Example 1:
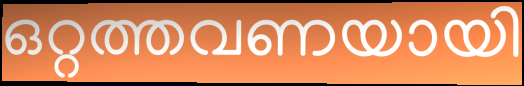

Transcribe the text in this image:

ഒറ്റത്തവണയായി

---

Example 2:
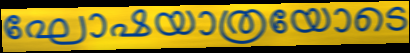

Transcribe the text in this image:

ഘോഷയാത്രയോടെ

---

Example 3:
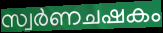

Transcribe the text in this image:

സ്വർണചഷകം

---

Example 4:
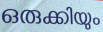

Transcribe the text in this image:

ഒരുക്കിയും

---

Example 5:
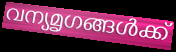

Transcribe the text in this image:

വന്യമൃഗങ്ങൾക്ക്